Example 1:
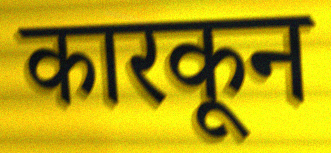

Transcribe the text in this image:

कारकून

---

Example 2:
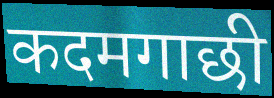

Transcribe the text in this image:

कदमगाछी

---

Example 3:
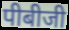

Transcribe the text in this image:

पीबीजी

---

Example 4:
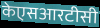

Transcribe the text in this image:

केएसआरटीसी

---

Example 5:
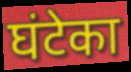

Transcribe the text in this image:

घंटेका